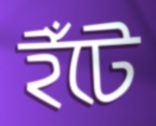
ইঁটে